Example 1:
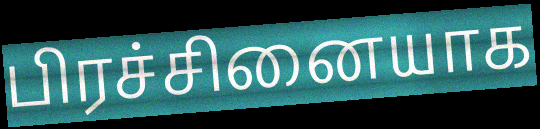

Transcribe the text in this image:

பிரச்சினையாக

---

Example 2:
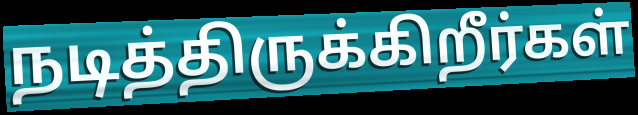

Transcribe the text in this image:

நடித்திருக்கிறீர்கள்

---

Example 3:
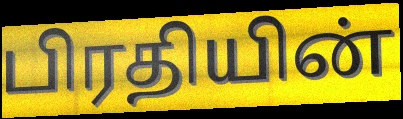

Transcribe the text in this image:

பிரதியின்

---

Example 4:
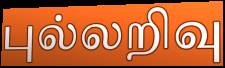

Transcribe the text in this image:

புல்லறிவு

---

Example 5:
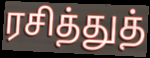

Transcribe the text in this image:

ரசித்துத்